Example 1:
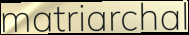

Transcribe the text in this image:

matriarchal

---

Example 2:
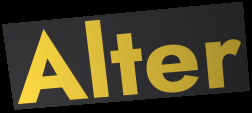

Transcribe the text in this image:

Alter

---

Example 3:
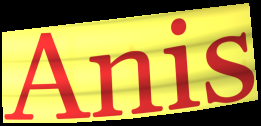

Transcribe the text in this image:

Anis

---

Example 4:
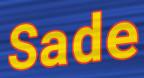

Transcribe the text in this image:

Sade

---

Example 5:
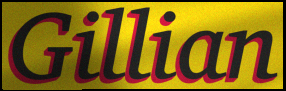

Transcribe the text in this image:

Gillian